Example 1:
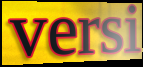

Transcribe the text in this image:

versi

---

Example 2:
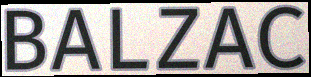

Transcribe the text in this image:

BALZAC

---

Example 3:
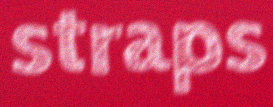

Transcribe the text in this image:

straps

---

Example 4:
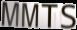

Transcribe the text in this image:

MMTS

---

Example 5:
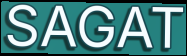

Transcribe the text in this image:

SAGAT